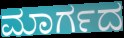
ಮಾರ್ಗದ